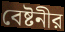
বেষ্টনীর